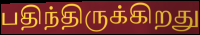
பதிந்திருக்கிறது